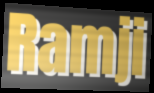
Ramji